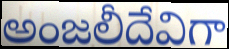
అంజలీదేవిగా